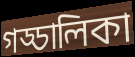
গড্ডালিকা